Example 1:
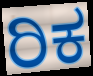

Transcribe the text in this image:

ರಿಕ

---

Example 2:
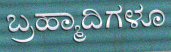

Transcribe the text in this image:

ಬ್ರಹ್ಮಾದಿಗಳೂ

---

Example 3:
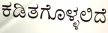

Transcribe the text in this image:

ಕಡಿತಗೊಳ್ಳಲಿದೆ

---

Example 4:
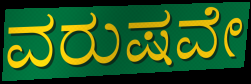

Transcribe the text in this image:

ವರುಷವೇ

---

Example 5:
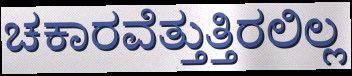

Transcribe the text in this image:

ಚಕಾರವೆತ್ತುತ್ತಿರಲಿಲ್ಲ